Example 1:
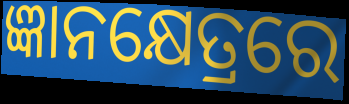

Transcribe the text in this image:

ଜ୍ଞାନକ୍ଷେତ୍ରରେ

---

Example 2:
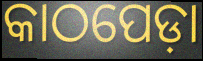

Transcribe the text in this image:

କାଠପେଡ଼ା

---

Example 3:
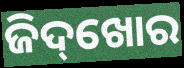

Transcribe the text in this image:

ଜିଦ୍‌ଖୋର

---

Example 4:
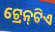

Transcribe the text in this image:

ଟ୍ରେନ୍‌ଟିଏ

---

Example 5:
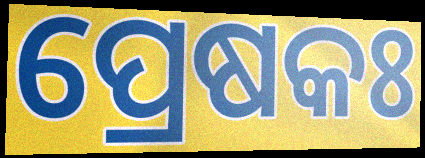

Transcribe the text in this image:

ପ୍ରେଷକଃ